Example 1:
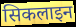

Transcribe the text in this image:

सिकलाइन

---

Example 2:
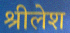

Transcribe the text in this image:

श्रीलेश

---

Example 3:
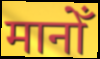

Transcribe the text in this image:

मानोँ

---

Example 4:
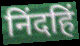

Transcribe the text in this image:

निंदहिं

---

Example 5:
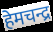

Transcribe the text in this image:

हेमचन्द्र